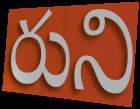
రుని